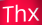
Thx